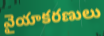
వైయాకరణులు